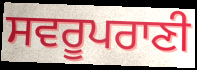
ਸਵਰੂਪਰਾਣੀ